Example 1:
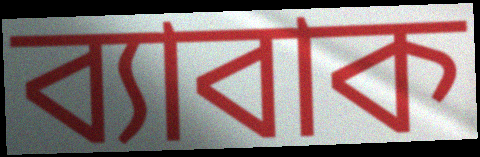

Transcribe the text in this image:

ব্যাবাক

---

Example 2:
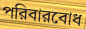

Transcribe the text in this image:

পরিবারবোধ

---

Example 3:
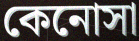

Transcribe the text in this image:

কেনোসা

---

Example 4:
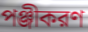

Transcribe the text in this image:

পঞ্জীকরণ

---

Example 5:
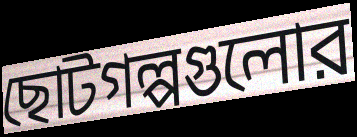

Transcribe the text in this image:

ছোটগল্পগুলোর